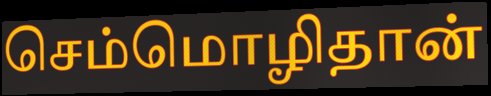
செம்மொழிதான்